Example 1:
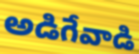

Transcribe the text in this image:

అడిగేవాడి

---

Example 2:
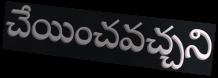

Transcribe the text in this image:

చేయించవచ్చని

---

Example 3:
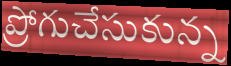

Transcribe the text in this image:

ప్రోగుచేసుకున్న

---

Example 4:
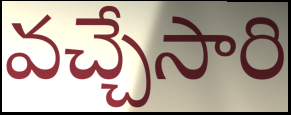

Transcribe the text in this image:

వచ్చేసారి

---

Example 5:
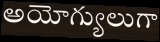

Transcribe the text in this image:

అయోగ్యులుగా